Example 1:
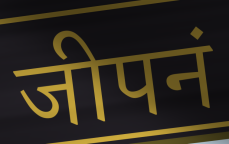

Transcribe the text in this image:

जीपनं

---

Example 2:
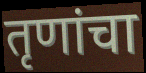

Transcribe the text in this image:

तृणांचा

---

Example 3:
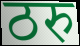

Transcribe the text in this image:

ठरु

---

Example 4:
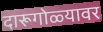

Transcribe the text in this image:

दारूगोळ्यावर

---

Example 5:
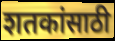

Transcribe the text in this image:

शतकांसाठी